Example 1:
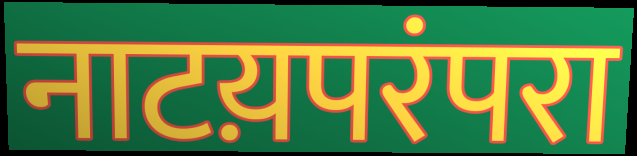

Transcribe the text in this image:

नाटय़परंपरा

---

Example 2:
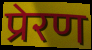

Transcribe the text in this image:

प्रेरण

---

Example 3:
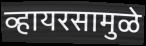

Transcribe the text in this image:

व्हायरसामुळे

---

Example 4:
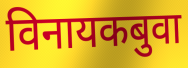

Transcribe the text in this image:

विनायकबुवा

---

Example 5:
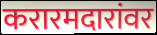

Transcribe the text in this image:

करारमदारांवर